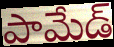
పామేడ్